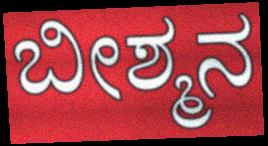
ಬೀಶ್ಮನ